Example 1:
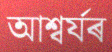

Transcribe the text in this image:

আশ্বৰ্যৰ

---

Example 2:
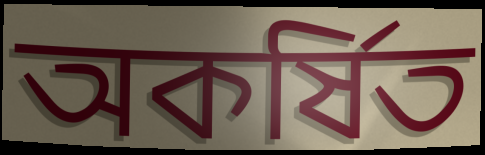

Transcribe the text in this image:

অকৰ্ষিত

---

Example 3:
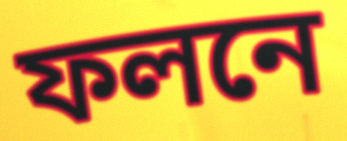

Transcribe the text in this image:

ফলনে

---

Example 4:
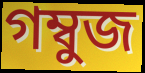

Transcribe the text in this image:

গম্বুজ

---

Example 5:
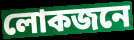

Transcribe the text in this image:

লোকজনে